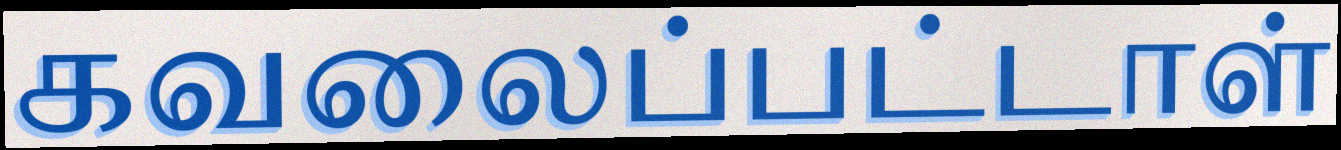
கவலைப்பட்டாள்